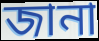
জানা